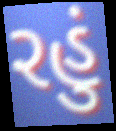
રહું